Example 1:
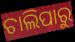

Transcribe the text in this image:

ଚାଲିପାରୁ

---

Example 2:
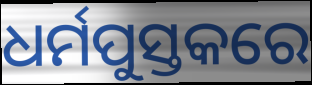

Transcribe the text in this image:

ଧର୍ମପୁସ୍ତକରେ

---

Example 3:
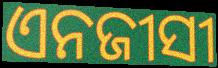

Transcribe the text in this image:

ଏନଜୀସୀ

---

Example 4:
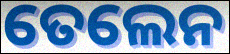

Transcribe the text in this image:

ତେଲେନ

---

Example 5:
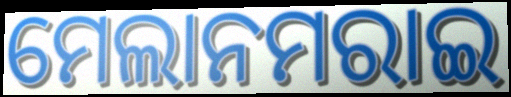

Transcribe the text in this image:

ମେଲାନମରାଇ